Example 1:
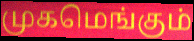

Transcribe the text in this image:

முகமெங்கும்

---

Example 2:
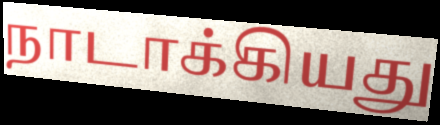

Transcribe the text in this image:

நாடாக்கியது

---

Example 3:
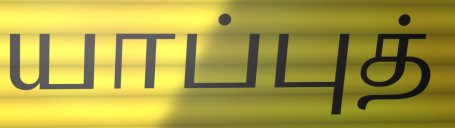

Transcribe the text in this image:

யாப்புத்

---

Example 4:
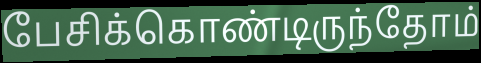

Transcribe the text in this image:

பேசிக்கொண்டிருந்தோம்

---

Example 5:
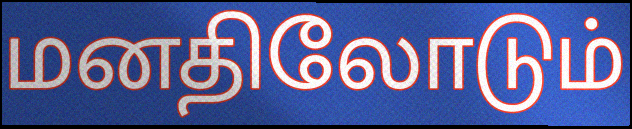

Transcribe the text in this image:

மனதிலோடும்